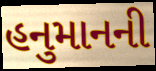
હનુમાનની